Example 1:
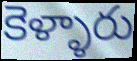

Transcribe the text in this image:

కెళ్ళారు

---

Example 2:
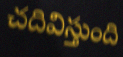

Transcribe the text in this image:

చదివిస్తుంది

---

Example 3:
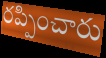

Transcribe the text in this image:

రప్పించారు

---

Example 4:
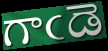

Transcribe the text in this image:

గాఁడె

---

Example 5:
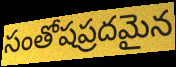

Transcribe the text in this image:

సంతోషప్రదమైన